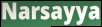
Narsayya